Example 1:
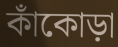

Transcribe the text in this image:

কাঁকোড়া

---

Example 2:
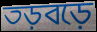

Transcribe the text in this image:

তড়বড়ে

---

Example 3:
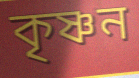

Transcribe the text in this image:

কৃষ্ণন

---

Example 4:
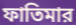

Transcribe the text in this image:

ফাতিমার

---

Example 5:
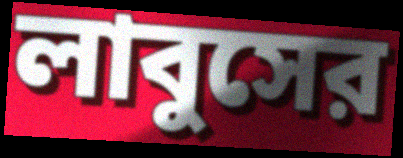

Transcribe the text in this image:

লাবুসের